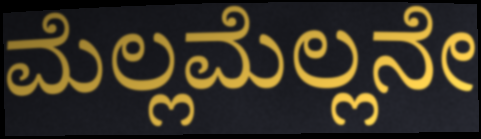
ಮೆಲ್ಲಮೆಲ್ಲನೇ